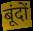
बूंदों